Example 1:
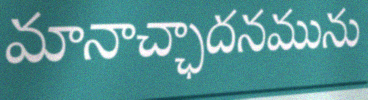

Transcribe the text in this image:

మానాచ్ఛాదనమును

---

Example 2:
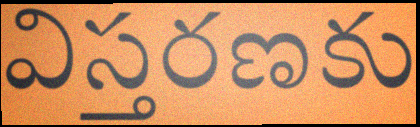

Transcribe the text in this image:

విస్తరణకు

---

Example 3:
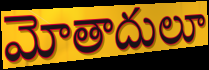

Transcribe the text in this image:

మోతాదులూ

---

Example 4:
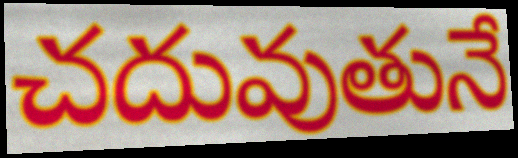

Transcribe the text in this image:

చదువుతునే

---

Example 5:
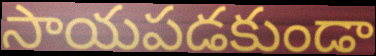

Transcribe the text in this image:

సాయపడకుండా